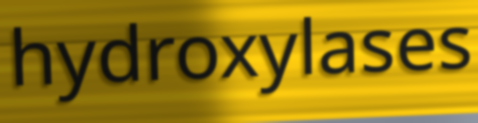
hydroxylases